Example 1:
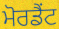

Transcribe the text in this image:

ਮੋਰਡੈਂਟ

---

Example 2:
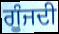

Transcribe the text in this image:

ਗੂੰਜਦੀ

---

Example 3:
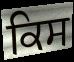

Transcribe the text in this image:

ਕਿਸ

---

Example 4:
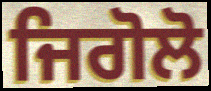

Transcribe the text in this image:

ਜਿਗੋਲੋ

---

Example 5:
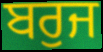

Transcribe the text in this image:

ਬਰੁਜ